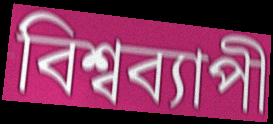
বিশ্বব্যাপী